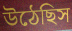
উঠেছিস